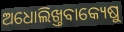
ଅଧୋଲିଖ୍ତବାକ୍ୟେଷୁ